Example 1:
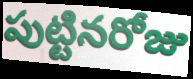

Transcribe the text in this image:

పుట్టినరోజు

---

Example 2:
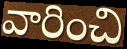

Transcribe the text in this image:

వారించి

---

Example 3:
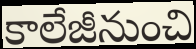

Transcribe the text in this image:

కాలేజీనుంచి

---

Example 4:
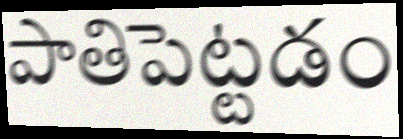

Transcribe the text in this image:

పాతిపెట్టడం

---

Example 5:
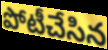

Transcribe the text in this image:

పోటీచేసిన